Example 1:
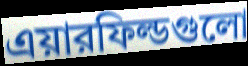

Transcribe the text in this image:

এয়ারফিল্ডগুলো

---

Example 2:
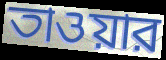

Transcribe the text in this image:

তাওয়ার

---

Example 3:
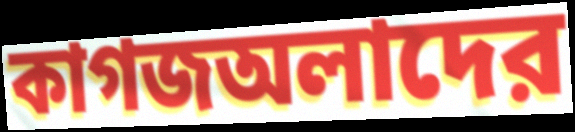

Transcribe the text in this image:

কাগজঅলাদের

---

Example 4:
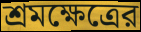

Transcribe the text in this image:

শ্রমক্ষেত্রের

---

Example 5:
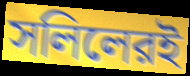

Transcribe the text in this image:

সলিলেরই